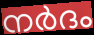
നർദം